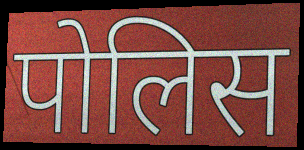
पोलिस